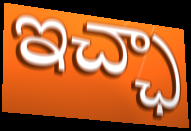
ఇచ్ఛా